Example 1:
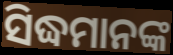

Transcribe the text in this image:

ସିଦ୍ଧମାନଙ୍କ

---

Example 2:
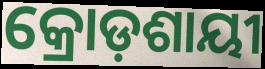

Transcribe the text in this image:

କ୍ରୋଡ଼ଶାୟୀ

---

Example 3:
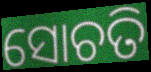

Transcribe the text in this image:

ସୋଚତି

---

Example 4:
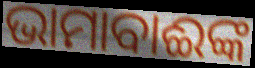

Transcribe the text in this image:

ଭାମାବାଈଙ୍କ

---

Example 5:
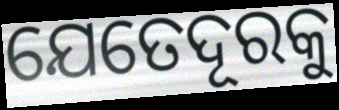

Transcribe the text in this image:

ଯେତେଦୂରକୁ